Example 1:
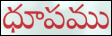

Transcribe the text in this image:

ధూపము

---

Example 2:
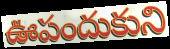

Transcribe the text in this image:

ఊపందుకుని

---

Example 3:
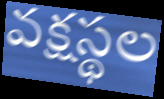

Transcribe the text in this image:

వక్షస్థల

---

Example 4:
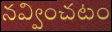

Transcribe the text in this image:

నవ్వించటం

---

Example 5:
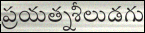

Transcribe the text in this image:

ప్రయత్నశీలుడగు